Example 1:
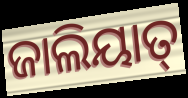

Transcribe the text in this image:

ଜାଲିୟାତ୍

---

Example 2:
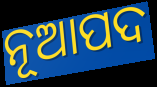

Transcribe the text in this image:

ନୂଆପଦ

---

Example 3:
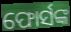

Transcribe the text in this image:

ଫୋର୍ସଙ୍କ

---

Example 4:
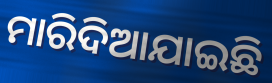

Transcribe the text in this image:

ମାରିଦିଆଯାଇଛି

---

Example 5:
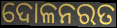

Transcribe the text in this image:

ଦୋଳନରତ